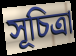
সূচিত্রা